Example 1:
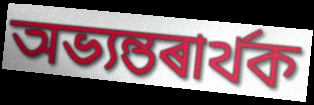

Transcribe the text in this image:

অভ্যন্তৰাৰ্থক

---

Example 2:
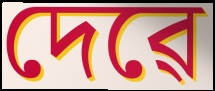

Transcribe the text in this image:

দেৱে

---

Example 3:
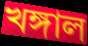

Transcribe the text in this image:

খঙ্গাল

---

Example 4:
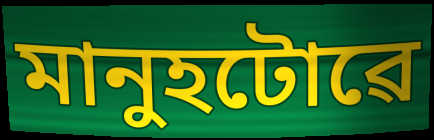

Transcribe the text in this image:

মানুহটোৱে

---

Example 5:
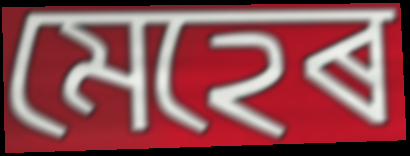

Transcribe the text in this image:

মেহেৰ